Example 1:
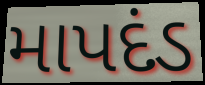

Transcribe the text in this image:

માપદંડ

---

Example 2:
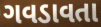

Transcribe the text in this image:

ગવડાવતા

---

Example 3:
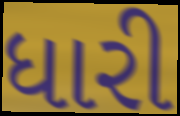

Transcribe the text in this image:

ધારી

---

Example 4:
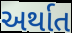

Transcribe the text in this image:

અર્થાત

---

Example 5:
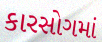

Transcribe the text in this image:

કારસોગમાં